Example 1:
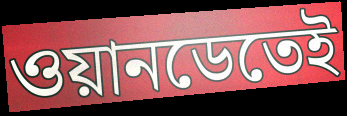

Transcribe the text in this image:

ওয়ানডেতেই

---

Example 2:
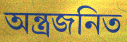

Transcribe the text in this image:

অন্ত্রজনিত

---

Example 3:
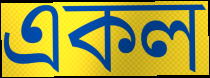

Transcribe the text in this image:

একল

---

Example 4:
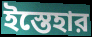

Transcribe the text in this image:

ইস্তেহার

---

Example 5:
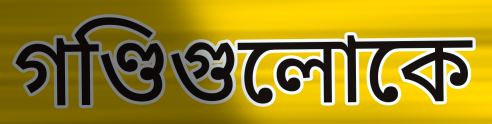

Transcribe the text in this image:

গণ্ডিগুলোকে